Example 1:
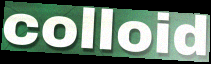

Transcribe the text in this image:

colloid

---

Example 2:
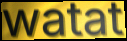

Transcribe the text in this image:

watat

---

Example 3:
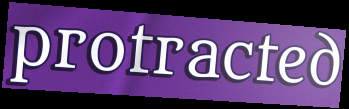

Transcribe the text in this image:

protracted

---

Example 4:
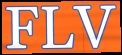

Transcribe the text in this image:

FLV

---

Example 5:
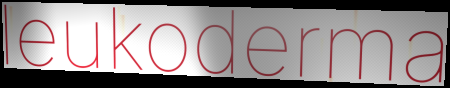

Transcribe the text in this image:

leukoderma